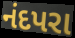
નંદપરા